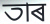
তাৰ